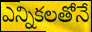
ఎన్నికలతోనే